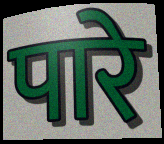
पारे